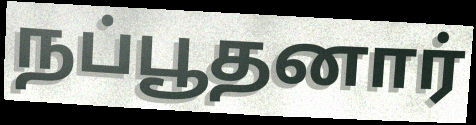
நப்பூதனார்